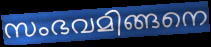
സംഭവമിങ്ങനെ